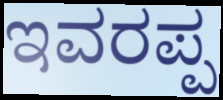
ಇವರಪ್ಪ